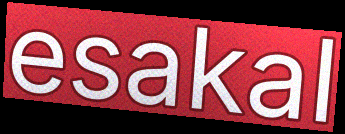
esakal